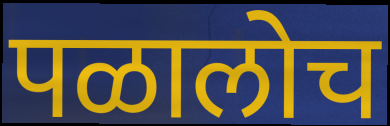
पळालोच